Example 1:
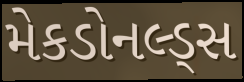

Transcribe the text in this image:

મેકડોનલ્ડ્સ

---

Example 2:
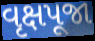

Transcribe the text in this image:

વૃક્ષપૂજા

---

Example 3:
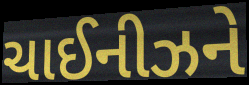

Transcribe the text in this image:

ચાઈનીઝને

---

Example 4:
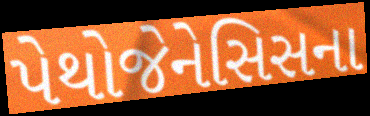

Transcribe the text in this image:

પેથોજેનેસિસના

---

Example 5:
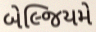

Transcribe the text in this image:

બેલ્જિયમે